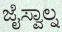
ಜೈಸ್ವಾಲ್ನ